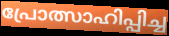
പ്രോത്സാഹിപ്പിച്ച